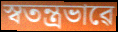
স্বতন্ত্ৰভাৱে